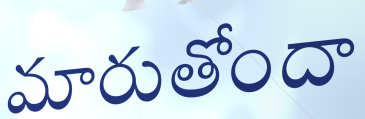
మారుతోందా